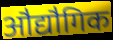
औद्यौगिक